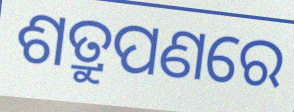
ଶତ୍ରୁପଣରେ